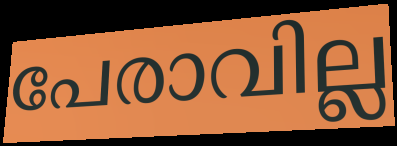
പേരാവില്ല